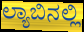
ಲ್ಯಾಬಿನಲ್ಲಿ